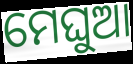
ମେଘୁଆ